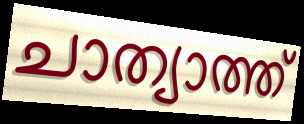
ചാത്യാത്ത്